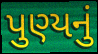
પુણ્યનું